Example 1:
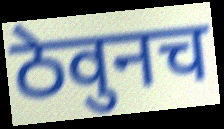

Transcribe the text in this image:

ठेवुनच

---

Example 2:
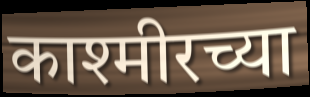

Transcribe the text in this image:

काश्मीरच्या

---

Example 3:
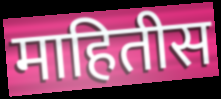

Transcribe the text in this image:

माहितीस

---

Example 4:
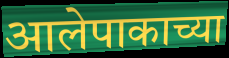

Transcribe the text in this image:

आलेपाकाच्या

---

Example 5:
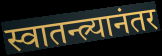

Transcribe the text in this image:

स्वातन्त्र्यानंतर